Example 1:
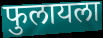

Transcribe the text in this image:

फुलायला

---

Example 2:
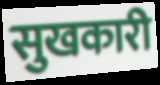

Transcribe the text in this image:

सुखकारी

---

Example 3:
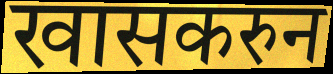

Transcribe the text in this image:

खासकरुन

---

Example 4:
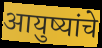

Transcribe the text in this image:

आयुष्यांचे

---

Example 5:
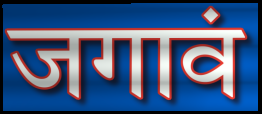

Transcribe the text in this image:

जगावं